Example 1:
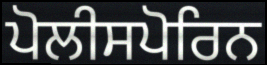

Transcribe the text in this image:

ਪੋਲੀਸਪੋਰਿਨ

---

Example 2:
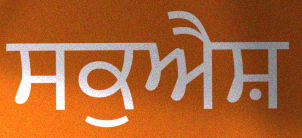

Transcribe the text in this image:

ਸਕੁਐਸ਼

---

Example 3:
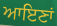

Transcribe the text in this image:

ਆਇਣਾਂ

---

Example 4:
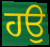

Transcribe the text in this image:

ਹਉ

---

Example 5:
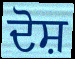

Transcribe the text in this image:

ਦੋਸ਼